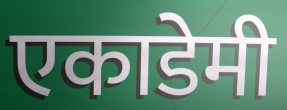
एकाडेमी